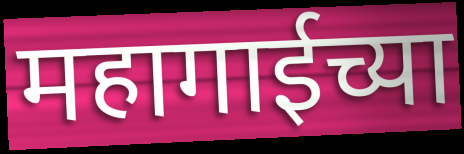
महागाईच्या